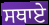
ਸਥਾਏ